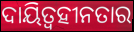
ଦାୟିତ୍ଵହୀନତାର